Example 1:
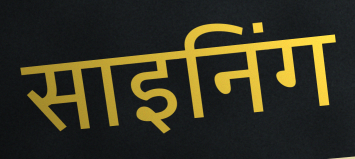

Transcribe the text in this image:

साइनिंग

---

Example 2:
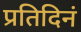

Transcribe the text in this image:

प्रतिदिनं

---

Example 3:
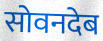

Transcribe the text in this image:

सोवनदेब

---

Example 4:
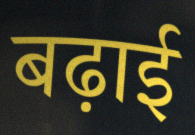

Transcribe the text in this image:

बढ़ाई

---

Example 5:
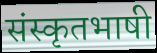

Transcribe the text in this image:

संस्कृतभाषी